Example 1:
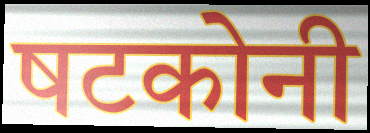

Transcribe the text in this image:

षटकोनी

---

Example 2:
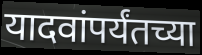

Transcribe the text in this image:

यादवांपर्यंतच्या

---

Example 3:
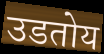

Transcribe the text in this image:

उडतोय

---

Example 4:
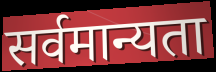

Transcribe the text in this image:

सर्वमान्यता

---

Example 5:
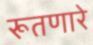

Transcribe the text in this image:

रूतणारे